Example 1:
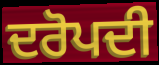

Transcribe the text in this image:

ਦਰੋਪਦੀ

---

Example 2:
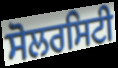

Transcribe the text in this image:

ਸੋਲਰਸਿਟੀ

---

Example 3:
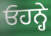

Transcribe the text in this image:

ਓਹਨ੍ਹੇ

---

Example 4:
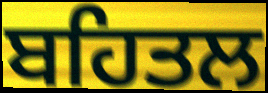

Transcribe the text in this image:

ਬਹਿਤਲ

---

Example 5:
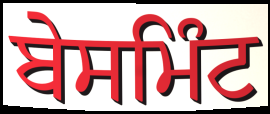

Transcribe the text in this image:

ਬੇਸਮਿੰਟ